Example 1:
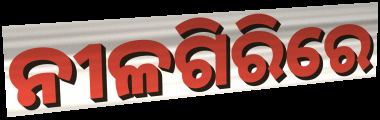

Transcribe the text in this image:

ନୀଳଗିରିରେ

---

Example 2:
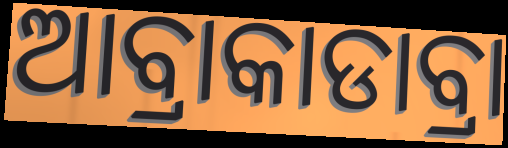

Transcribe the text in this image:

ଆବ୍ରାକାଡାବ୍ରା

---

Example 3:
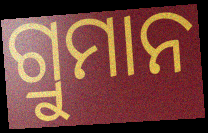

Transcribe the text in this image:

ଗ୍ରୁମାନ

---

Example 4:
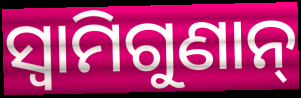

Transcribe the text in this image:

ସ୍ୱାମିଗୁଣାନ୍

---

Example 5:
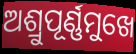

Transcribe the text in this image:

ଅଶ୍ରୁପୂର୍ଣ୍ଣମୁଖେ